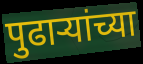
पुढार्‍यांच्या